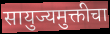
सायुज्यमुक्तीचा